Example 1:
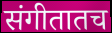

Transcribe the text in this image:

संगीतातच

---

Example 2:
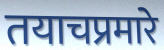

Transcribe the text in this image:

तयाचप्रमारे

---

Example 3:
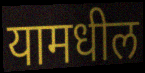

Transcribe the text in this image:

यामधील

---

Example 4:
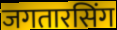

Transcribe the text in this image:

जगतारसिंग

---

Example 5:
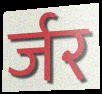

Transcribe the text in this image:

र्जर